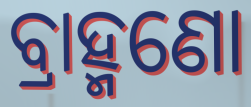
ବ୍ରାହ୍ମଣୋ